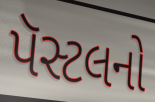
પૅસ્ટલનો